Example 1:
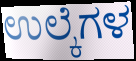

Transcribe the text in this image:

ಉಲ್ಕೆಗಳ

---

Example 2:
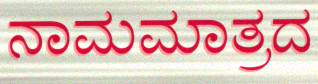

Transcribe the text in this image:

ನಾಮಮಾತ್ರದ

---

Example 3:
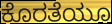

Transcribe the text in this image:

ಕೊರತೆಯೂ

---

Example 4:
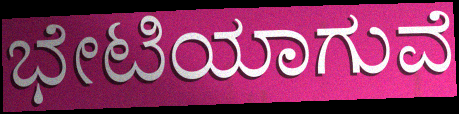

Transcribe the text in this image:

ಭೇಟಿಯಾಗುವೆ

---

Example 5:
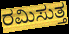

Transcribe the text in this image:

ರಮಿಸುತ್ತ